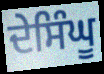
ਦੇਸਿੰਘੂ